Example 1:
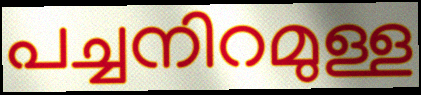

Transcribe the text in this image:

പച്ചനിറമുള്ള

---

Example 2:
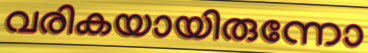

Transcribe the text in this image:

വരികയായിരുന്നോ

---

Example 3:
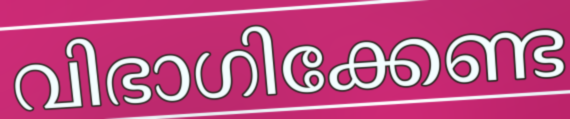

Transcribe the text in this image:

വിഭാഗിക്കേണ്ട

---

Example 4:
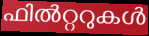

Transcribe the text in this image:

ഫിൽറ്ററുകൾ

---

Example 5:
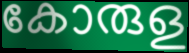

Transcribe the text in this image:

കോരുള